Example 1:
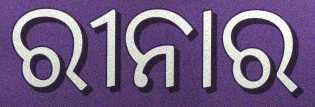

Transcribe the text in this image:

ରୀନାର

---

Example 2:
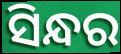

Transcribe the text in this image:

ସିନ୍ଧର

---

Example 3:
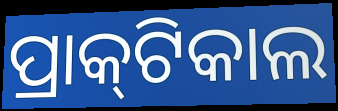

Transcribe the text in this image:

ପ୍ରାକ୍‌ଟିକାଲ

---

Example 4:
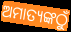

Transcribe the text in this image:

ଅମାତ୍ୟଙ୍କଠୁଁ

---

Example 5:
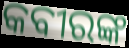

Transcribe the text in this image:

କବୀରଙ୍କ